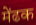
मेंढक